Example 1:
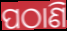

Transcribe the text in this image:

ପଠାଣି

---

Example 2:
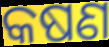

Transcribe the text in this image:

କଷଣ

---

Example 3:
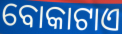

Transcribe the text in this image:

ବୋକାଟାଏ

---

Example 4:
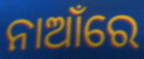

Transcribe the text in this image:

ନାଆଁରେ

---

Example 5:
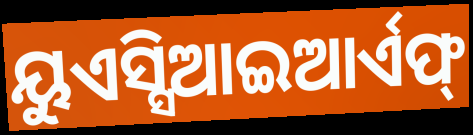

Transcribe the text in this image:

ୟୁଏସ୍ସିଆଇଆର୍ଏଫ୍